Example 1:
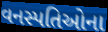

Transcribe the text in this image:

વનસ્પતિઓના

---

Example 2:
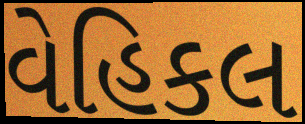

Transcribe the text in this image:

વેહિકલ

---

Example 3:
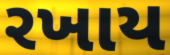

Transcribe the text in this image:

રખાય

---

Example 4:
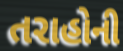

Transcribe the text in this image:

તરાહોની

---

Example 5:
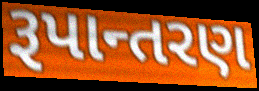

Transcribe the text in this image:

રૂપાન્તરણ